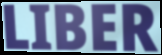
LIBER